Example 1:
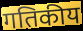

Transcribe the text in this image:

गतिकीय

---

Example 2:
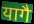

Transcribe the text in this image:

यागै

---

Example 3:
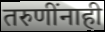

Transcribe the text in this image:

तरुणींनाही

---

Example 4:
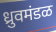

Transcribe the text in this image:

ध्रुवमंडळ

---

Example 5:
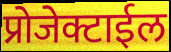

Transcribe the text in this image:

प्रोजेक्टाईल